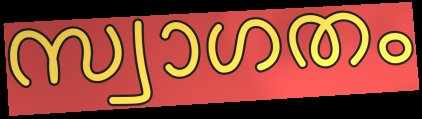
സ്വാഗതം